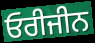
ਓਰੀਜੀਨ